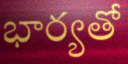
భార్యతో